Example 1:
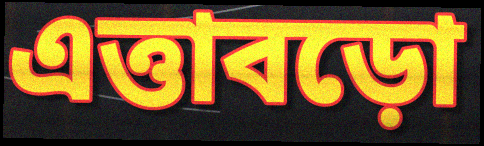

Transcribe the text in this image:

এত্তাবড়ো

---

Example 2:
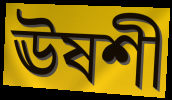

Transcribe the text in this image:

ঊষশী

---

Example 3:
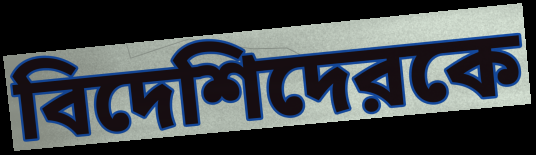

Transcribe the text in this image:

বিদেশিদেরকে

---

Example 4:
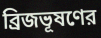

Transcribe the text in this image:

ব্রিজভূষণের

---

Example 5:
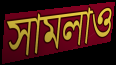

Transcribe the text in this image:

সামলাও